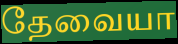
தேவையா